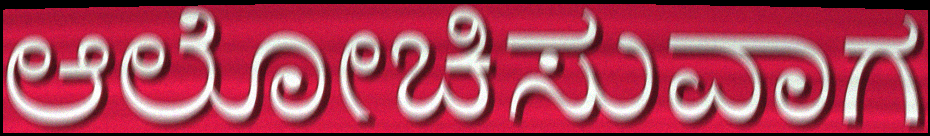
ಆಲೋಚಿಸುವಾಗ